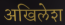
अखिलेश